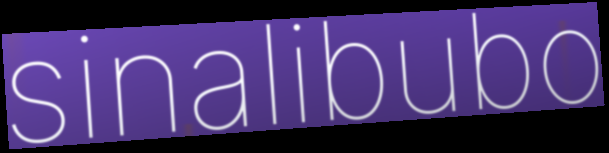
sinalibubo